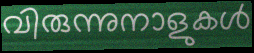
വിരുന്നുനാളുകൾ